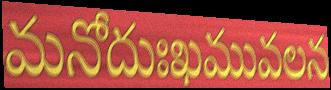
మనోదుఃఖమువలన